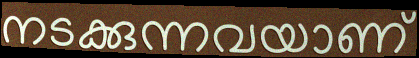
നടക്കുന്നവയാണ്